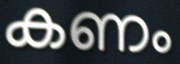
കണം